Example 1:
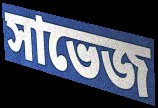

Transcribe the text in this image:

সাভেজ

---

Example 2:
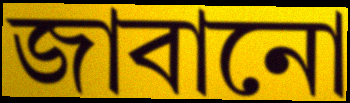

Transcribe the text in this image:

জাবানো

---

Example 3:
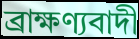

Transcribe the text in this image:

ব্রাক্ষণ্যবাদী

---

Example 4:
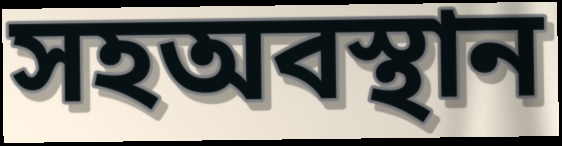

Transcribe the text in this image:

সহঅবস্থান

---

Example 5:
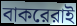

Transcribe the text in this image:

বাকরেরাই